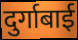
दुर्गाबाई